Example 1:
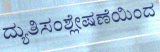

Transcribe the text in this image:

ದ್ಯುತಿಸಂಶ್ಲೇಷಣೆಯಿಂದ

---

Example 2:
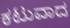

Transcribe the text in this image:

ಕಟುವಾದ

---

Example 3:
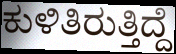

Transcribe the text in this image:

ಕುಳಿತಿರುತ್ತಿದ್ದೆ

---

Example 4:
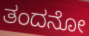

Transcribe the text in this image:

ತಂದನೋ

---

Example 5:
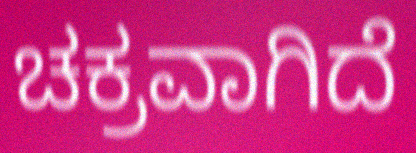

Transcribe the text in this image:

ಚಕ್ರವಾಗಿದೆ